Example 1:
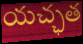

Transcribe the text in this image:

యచ్ఛత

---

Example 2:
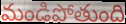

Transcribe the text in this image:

మండిపోతుంది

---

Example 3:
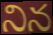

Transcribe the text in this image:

నిన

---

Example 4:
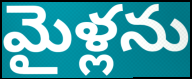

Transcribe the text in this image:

మైళ్లను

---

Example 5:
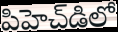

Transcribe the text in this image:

పిహెచ్‌డిలో